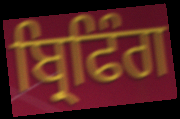
ਬ੍ਰਿਫਿੰਗ